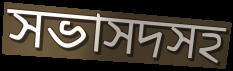
সভাসদসহ